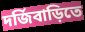
দর্জিবাড়িতে